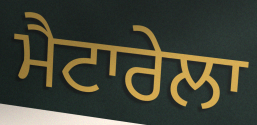
ਮੈਟਾਰੇਲਾ